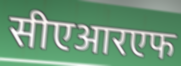
सीएआरएफ